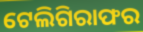
ଟେଲିଗିରାଫର